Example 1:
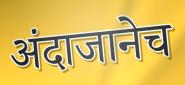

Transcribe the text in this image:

अंदाजानेच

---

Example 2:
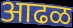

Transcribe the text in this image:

आढळ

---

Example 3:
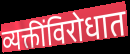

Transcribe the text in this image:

व्यक्तींविरोधात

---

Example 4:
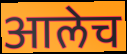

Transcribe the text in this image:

आलेच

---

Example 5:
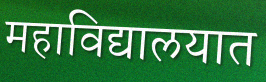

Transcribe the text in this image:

महाविद्यालयात